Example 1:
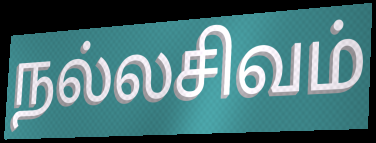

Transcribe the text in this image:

நல்லசிவம்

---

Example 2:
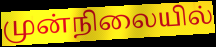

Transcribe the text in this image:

முன்நிலையில்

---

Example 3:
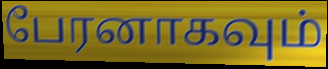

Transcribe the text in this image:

பேரனாகவும்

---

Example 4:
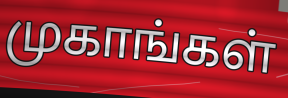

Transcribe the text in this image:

முகாங்கள்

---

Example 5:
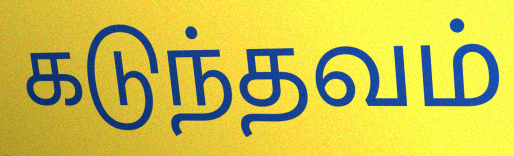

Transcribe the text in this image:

கடுந்தவம்